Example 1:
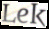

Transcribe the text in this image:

Lek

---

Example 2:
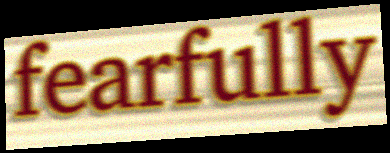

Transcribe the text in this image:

fearfully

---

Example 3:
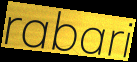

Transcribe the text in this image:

rabari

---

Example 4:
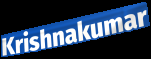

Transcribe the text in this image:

Krishnakumar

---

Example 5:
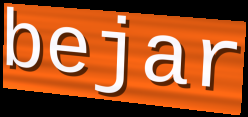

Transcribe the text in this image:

bejar